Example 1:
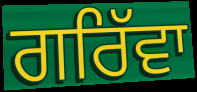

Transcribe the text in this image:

ਗਰਿੱਵਾ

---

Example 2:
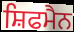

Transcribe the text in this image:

ਸ਼ਿਫਮੈਨ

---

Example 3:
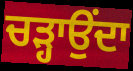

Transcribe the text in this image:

ਚੜ੍ਹਾਉਂਦਾ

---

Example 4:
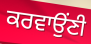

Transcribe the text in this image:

ਕਰਵਾਉਂਣੀ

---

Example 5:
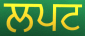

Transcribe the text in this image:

ਲਪਟ